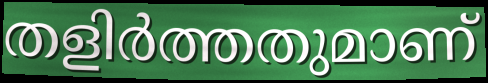
തളിർത്തതുമാണ്